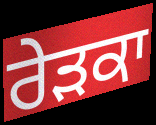
ਰੇੜਕਾ